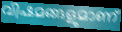
വിഷമങ്ങളുമാണ്